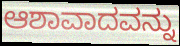
ಆಶಾವಾದವನ್ನು